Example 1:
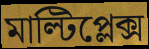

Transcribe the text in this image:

মাল্টিপ্লেক্স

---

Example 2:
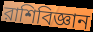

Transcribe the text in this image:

রাশিবিজ্ঞান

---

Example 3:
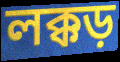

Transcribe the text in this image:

লক্কড়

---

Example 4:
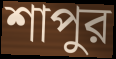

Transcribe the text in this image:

শাপুর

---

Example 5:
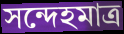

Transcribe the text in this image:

সন্দেহমাত্র